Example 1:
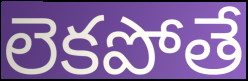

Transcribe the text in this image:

లెకపోతే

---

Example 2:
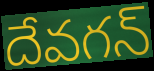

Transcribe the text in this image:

దేవగన్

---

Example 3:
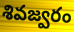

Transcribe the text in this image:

శివజ్వరం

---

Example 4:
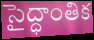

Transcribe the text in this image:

సైద్ధాంతిక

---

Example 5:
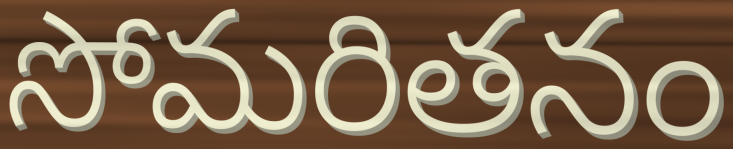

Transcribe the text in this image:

సోమరితనం